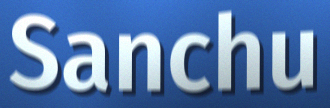
Sanchu